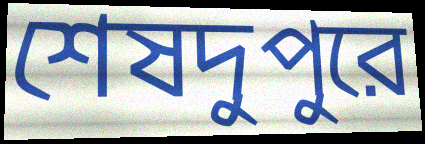
শেষদুপুরে